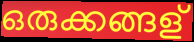
ഒരുക്കങ്ങള്